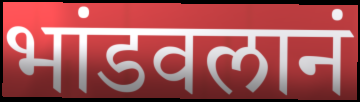
भांडवलानं